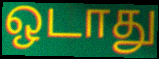
ஒடாது